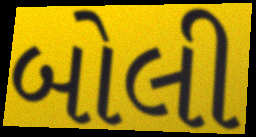
બોલી